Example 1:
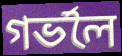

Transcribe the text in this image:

গৰ্ভলৈ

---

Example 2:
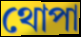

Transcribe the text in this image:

থোপা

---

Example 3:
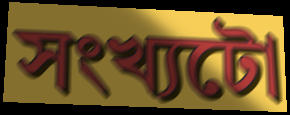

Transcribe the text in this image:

সংখ্যটো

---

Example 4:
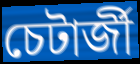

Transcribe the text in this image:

চেটাৰ্জী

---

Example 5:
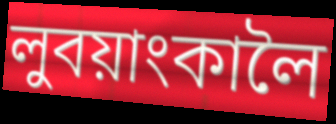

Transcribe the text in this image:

লুবয়াংকালৈ